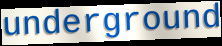
underground